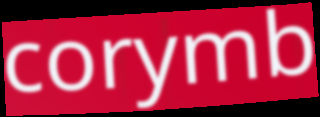
corymb